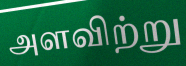
அளவிற்று